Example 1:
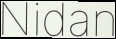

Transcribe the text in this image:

Nidan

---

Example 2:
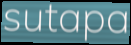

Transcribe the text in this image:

sutapa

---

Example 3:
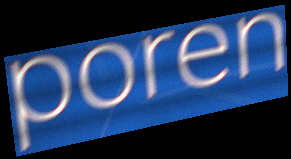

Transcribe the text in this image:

poren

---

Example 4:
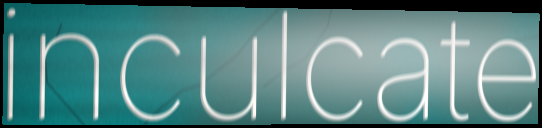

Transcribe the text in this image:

inculcate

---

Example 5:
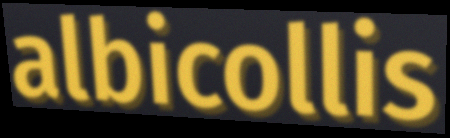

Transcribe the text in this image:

albicollis